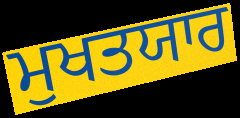
ਮੁਖਤਯਾਰ